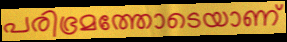
പരിഭ്രമത്തോടെയാണ്